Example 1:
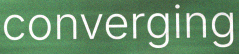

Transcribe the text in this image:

converging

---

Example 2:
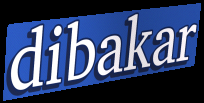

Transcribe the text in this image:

dibakar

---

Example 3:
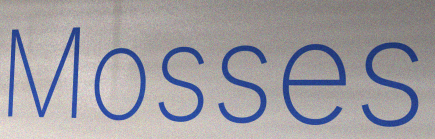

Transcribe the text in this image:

Mosses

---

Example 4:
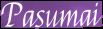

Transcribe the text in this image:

Pasumai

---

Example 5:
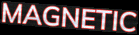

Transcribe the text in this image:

MAGNETIC